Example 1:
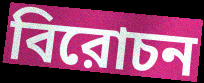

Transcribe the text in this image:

বিরোচন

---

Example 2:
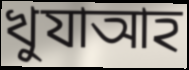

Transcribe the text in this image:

খুযাআহ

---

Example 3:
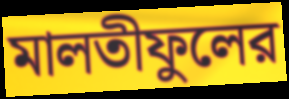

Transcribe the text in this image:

মালতীফুলের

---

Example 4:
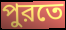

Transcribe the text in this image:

পুরতে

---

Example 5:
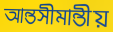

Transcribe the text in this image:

আন্তসীমান্তীয়